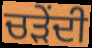
ਚੜੇਂਦੀ